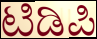
ಟಿಡಿಪಿ